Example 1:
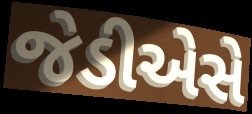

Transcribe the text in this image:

જેડીએસે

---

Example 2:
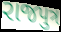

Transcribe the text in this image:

રાજપુત્ર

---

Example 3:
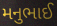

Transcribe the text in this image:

મનુભાઈ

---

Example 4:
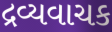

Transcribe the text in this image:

દ્રવ્યવાચક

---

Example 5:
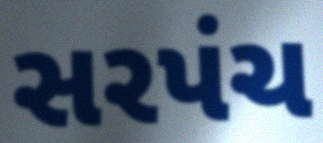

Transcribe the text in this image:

સરપંચ